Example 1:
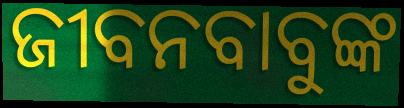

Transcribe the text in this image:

ଜୀବନବାବୁଙ୍କ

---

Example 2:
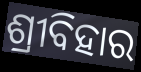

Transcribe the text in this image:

ଶ୍ରୀବିହାର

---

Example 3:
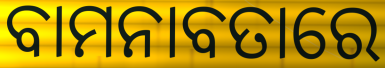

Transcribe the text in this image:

ବାମନାବତାରେ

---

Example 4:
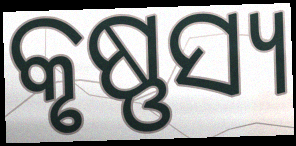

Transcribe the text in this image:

କୃଷ୍ଣସ୍ୟ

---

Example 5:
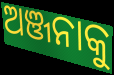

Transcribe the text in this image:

ଅଞ୍ଜନାକୁ